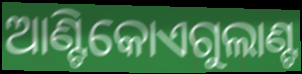
ଆଣ୍ଟିକୋଏଗୁଲାଣ୍ଟ